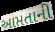
આપ્તતાની